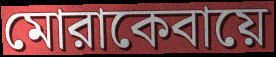
মোরাকেবায়ে